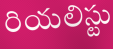
రియలిస్టు